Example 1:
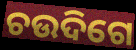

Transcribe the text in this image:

ଚଉଦିଗେ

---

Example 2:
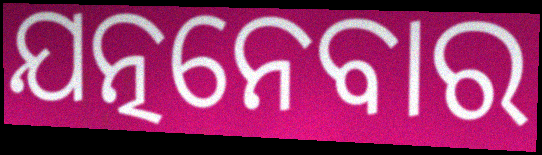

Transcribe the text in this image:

ଯତ୍ନନେବାର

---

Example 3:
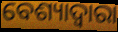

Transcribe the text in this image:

ବେଶ୍ୟାଦ୍ୱାରା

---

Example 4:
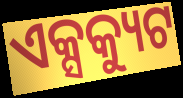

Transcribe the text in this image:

ଏକ୍ସକ୍ୟୁଟ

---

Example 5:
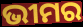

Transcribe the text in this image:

ଭୀମର